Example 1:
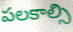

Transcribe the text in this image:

పలకాల్సి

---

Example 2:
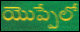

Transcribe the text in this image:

యొప్పేలో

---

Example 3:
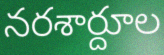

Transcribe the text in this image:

నరశార్దూల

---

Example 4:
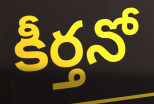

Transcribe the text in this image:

కీర్తనో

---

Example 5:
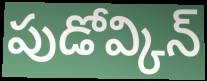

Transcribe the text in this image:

పుడోవ్కిన్